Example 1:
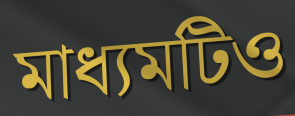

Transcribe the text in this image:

মাধ্যমটিও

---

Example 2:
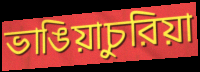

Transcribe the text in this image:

ভাঙিয়াচুরিয়া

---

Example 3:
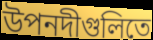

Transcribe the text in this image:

উপনদীগুলিতে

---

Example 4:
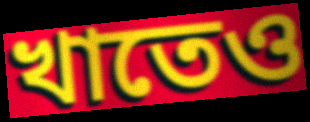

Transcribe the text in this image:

খাতেও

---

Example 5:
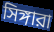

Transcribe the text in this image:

সিঙ্গারা